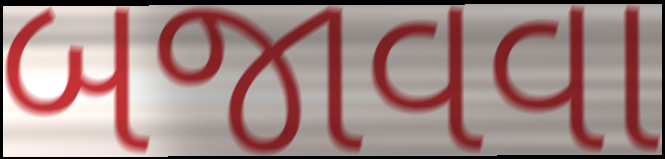
બજાવવા